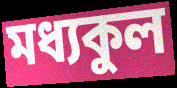
মধ্যকুল